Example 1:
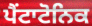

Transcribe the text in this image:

ਪੈਂਟਾਟੋਨਿਕ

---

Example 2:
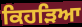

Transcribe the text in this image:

ਕਿਹੜਿਆ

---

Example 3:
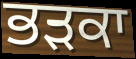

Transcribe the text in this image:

ਭੜਕਾ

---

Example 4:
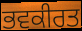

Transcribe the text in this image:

ਭਵਕੀਰਤ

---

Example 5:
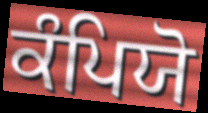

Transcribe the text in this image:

ਕੰਪਿਯੋ